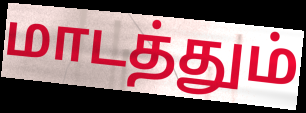
மாடத்தும்